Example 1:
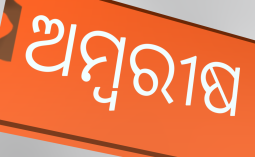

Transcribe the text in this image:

ଅମ୍ବରୀଷ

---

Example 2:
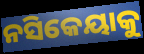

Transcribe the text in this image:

ନସିକେୟାକୁ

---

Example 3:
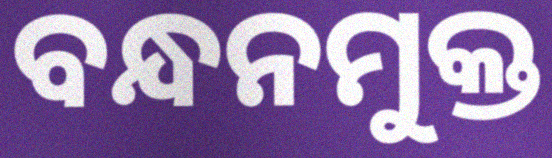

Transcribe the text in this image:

ବନ୍ଧନମୁକ୍ତ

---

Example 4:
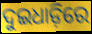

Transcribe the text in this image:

ଦୁଇଧାଡ଼ିରେ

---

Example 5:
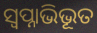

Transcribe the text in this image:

ସ୍ଵପ୍ନାଭିଭୂତ